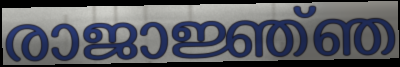
രാജാജ്ഞ്ഞ